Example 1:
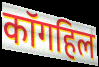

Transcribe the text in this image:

कॉगहिल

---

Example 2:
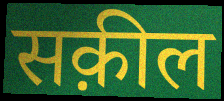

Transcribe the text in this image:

सक़ील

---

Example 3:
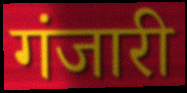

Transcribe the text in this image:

गंजारी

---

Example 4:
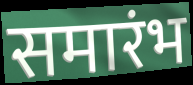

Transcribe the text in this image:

समारंभ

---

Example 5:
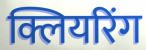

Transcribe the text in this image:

क्लियरिंग